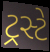
ટ્રસ્ટે